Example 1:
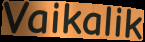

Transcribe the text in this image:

Vaikalik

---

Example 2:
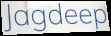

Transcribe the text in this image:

Jagdeep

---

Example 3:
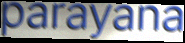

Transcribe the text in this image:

parayana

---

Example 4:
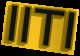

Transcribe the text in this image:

IITI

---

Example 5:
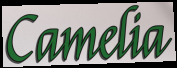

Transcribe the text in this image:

Camelia